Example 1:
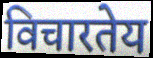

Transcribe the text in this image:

विचारतेय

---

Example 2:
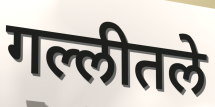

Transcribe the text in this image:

गल्लीतले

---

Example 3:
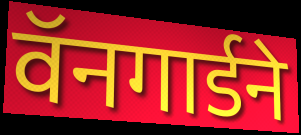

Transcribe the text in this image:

वॅनगार्डने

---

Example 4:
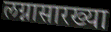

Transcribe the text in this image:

लग्नासारख्या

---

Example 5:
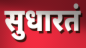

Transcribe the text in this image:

सुधारतं